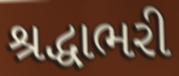
શ્રદ્ધાભરી